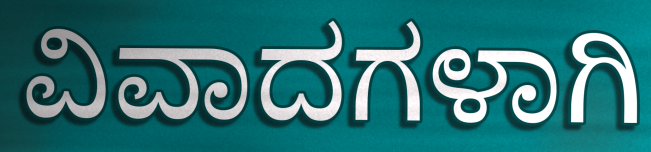
ವಿವಾದಗಳಾಗಿ